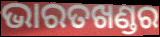
ଭାରତଖଣ୍ଡର